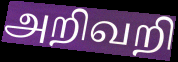
அறிவறி